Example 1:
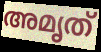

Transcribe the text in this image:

അമൃത്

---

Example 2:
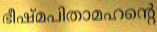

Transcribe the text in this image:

ഭീഷ്മപിതാമഹന്റെ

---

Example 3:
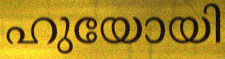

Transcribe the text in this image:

ഹുയോയി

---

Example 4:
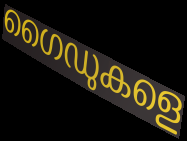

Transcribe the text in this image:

ഗൈഡുകളെ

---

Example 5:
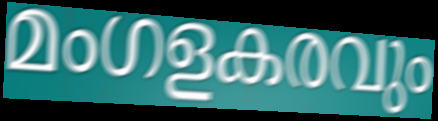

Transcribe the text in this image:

മംഗളകരവും